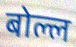
बोल्ल